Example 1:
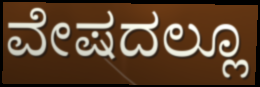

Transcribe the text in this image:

ವೇಷದಲ್ಲೂ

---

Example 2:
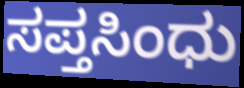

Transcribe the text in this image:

ಸಪ್ತಸಿಂಧು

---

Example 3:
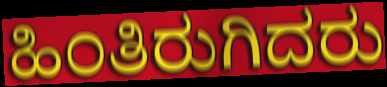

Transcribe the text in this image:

ಹಿಂತಿರುಗಿದರು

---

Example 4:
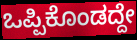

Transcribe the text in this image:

ಒಪ್ಪಿಕೊಂಡದ್ದೇ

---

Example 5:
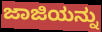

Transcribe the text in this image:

ಜಾಜಿಯನ್ನು